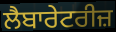
ਲੈਬਾਰੇਟਰੀਜ਼